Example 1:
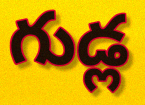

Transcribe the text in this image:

గుడ్ల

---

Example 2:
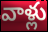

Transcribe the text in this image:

వాళ్లు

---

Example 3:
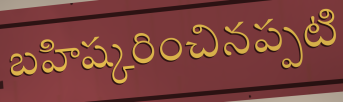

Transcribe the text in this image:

బహిష్కరించినప్పటి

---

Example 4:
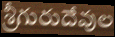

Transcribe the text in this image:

శ్రీగురుదేవుల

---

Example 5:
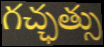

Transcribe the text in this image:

గచ్ఛత్సు